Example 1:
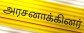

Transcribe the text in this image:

அரசனாக்கினர்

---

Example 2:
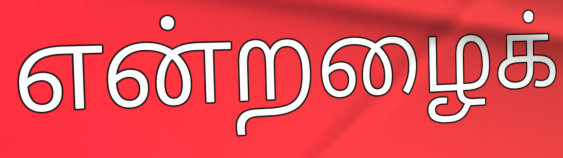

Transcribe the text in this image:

என்றழைக்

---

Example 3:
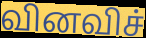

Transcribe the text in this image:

வினவிச்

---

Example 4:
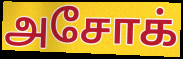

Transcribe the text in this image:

அசோக்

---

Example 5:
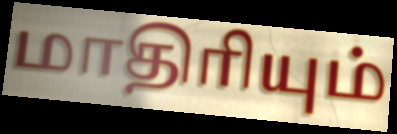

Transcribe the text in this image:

மாதிரியும்